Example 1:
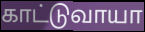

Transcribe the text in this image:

காட்டுவாயா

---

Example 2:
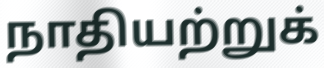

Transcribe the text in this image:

நாதியற்றுக்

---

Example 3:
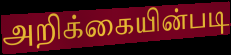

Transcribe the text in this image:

அறிக்கையின்படி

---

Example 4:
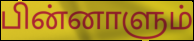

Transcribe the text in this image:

பின்னாளும்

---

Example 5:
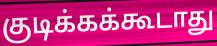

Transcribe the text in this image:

குடிக்கக்கூடாது